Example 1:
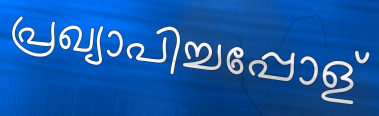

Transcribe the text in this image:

പ്രഖ്യാപിച്ചപ്പോള്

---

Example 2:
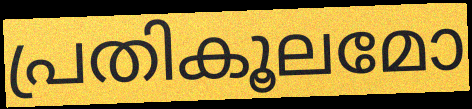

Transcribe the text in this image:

പ്രതികൂലമോ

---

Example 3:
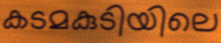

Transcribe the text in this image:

കടമകുടിയിലെ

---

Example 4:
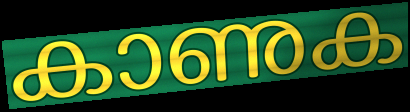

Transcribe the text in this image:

കാണുക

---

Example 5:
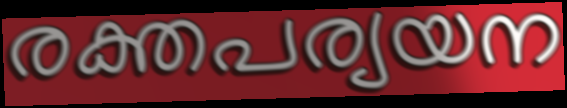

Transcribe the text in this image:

രക്തപര്യയന